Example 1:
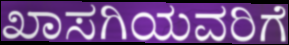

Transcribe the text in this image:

ಖಾಸಗಿಯವರಿಗೆ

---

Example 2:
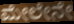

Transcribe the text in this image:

ಮೇಲೇನೇ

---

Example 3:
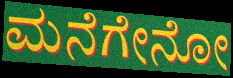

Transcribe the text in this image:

ಮನೆಗೇನೋ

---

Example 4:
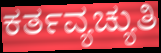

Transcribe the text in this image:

ಕರ್ತವ್ಯಚ್ಯುತಿ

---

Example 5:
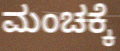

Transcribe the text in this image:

ಮಂಚಕ್ಕೆ